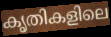
കൃതികളിലെ